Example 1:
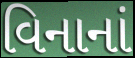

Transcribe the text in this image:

વિનાનાં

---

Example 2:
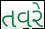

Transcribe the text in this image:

તવરે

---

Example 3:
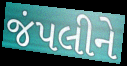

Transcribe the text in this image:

જંપલીને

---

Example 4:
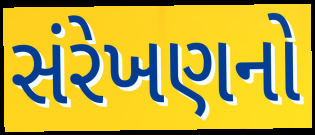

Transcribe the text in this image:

સંરેખણનો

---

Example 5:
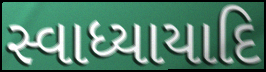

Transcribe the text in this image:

સ્વાધ્યાયાદિ